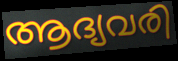
ആദ്യവരി